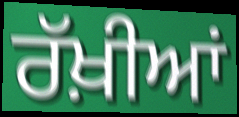
ਰੱਖ਼ੀਆਂ